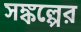
সঙ্কল্পের